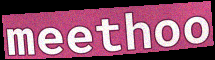
meethoo